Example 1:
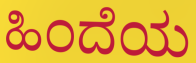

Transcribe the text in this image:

ಹಿಂದೆಯ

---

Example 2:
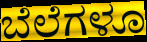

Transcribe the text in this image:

ಬೆಲೆಗಳೂ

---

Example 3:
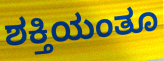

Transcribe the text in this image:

ಶಕ್ತಿಯಂತೂ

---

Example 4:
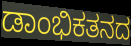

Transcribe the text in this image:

ಡಾಂಭಿಕತನದ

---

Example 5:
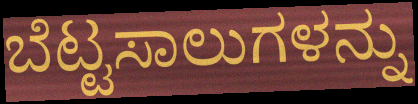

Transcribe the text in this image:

ಬೆಟ್ಟಸಾಲುಗಳನ್ನು